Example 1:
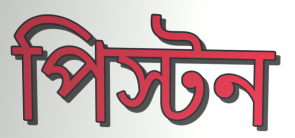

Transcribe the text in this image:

পিস্টন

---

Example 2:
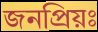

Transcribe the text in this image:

জনপ্রিয়ঃ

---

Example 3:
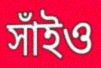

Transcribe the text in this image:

সাঁইও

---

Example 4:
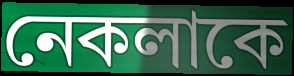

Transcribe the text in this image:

নেকলাকে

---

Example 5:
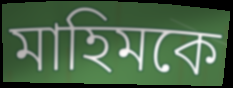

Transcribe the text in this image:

মাহিমকে